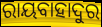
ରାୟବାହାଦୁର